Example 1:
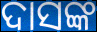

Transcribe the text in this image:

ଦାସଙ୍କ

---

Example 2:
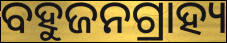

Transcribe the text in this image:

ବହୁଜନଗ୍ରାହ୍ୟ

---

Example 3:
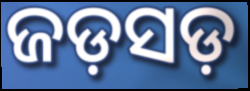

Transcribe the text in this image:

ଜଡ଼ସଡ଼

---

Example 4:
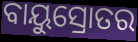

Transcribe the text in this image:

ବାୟୁସ୍ରୋତର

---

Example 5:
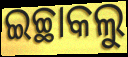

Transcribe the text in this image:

ଇଚ୍ଛାକଲୁ